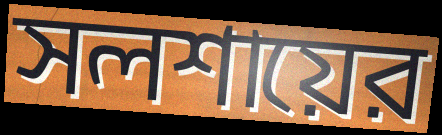
সলশায়ের